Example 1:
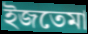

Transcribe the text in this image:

ইজতেমা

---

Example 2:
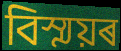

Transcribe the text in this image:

বিস্ময়ৰ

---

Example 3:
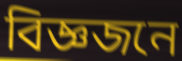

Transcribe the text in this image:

বিজ্ঞজনে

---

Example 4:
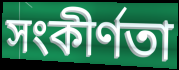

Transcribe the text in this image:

সংকীৰ্ণতা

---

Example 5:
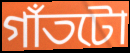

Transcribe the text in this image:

গাঁতটো